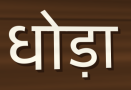
धोड़ा